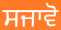
ਸਜਾਵੋ